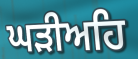
ਘੜੀਅਹਿ